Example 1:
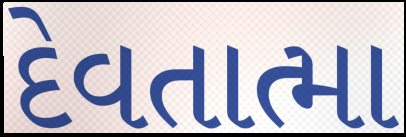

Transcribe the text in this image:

દેવતાત્મા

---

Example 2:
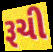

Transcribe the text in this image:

રૂચી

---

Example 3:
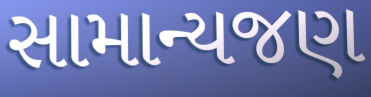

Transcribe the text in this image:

સામાન્યજણ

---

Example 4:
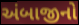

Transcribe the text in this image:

અંબાજીનો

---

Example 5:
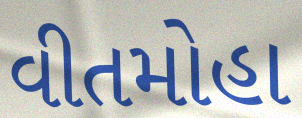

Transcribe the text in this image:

વીતમોહા